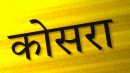
कोसरा